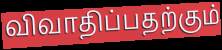
விவாதிப்பதற்கும்